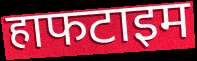
हाफटाइम